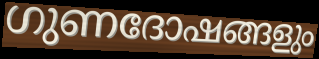
ഗുണദോഷങ്ങളും